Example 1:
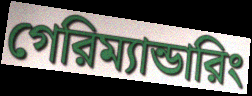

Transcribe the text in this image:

গেরিম্যান্ডারিং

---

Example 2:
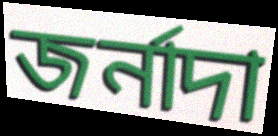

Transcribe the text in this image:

জর্নাদা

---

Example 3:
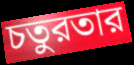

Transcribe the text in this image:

চতুরতার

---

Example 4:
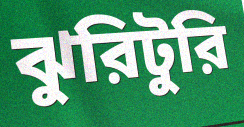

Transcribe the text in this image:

ঝুরিটুরি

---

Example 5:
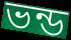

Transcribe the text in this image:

ভন্ড